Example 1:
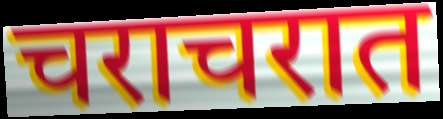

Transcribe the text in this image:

चराचरात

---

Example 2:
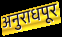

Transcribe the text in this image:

अनुराधपूर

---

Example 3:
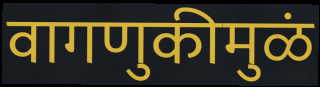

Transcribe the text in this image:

वागणुकीमुळं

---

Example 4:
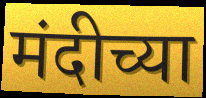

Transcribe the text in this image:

मंदीच्या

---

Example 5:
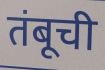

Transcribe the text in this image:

तंबूची